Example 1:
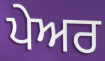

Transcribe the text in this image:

ਪੇਅਰ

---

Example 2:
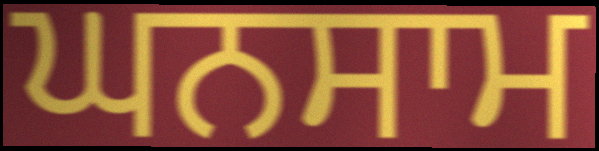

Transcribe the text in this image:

ਘਨਸਾਮ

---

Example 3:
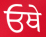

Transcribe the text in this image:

ਓਥੇ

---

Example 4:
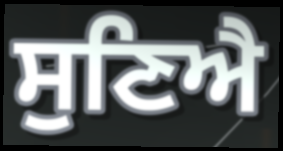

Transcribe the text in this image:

ਸੁਣਿਐ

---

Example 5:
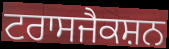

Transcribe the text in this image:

ਟਰਾਸਜੈਕਸ਼ਨ